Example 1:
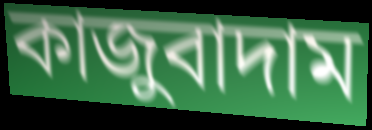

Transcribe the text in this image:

কাজুবাদাম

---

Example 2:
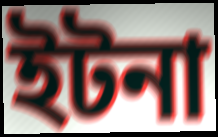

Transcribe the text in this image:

ইটনা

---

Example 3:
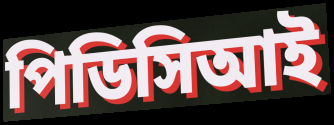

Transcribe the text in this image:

পিডিসিআই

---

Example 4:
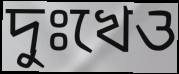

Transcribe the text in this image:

দুঃখেও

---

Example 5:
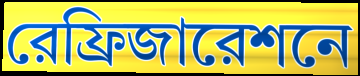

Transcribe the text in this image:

রেফ্রিজারেশনে